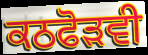
ਕਠਫੋੜਵੀ